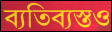
ব্যতিব্যস্তও